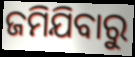
ଜମିଯିବାରୁ